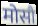
मोसौ